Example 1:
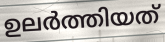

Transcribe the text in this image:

ഉലർത്തിയത്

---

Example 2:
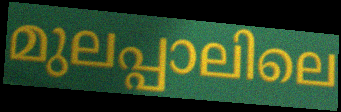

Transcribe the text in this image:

മുലപ്പാലിലെ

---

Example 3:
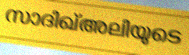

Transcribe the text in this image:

സാദിഖ്അലിയുടെ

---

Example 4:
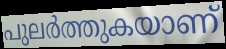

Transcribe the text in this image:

പുലർത്തുകയാണ്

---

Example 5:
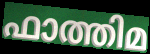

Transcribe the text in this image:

ഫാത്തിമ